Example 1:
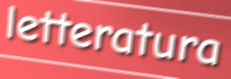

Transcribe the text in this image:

letteratura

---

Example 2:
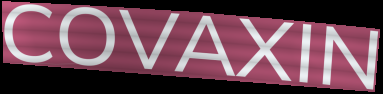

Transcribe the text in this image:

COVAXIN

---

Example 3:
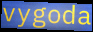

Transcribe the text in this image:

vygoda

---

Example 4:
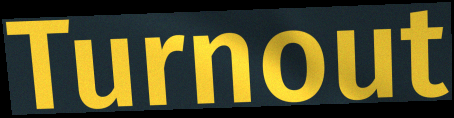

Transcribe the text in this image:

Turnout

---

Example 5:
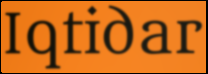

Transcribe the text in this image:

Iqtidar